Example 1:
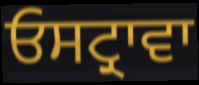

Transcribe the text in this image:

ਓਸਟ੍ਰਾਵਾ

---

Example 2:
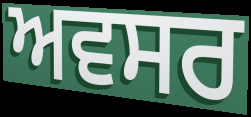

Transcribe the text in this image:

ਅਵਸਰ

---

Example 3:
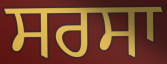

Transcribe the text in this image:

ਸਰਸਾ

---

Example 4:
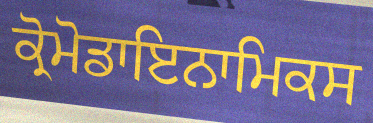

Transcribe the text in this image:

ਕ੍ਰੋਮੋਡਾਇਨਾਮਿਕਸ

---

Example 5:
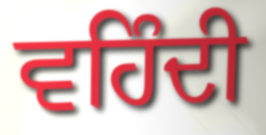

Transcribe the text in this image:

ਵਹਿੰਦੀ